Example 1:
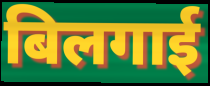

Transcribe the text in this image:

बिलगाई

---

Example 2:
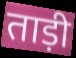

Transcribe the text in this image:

ताड़ी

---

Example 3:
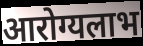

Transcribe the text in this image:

आरोग्यलाभ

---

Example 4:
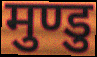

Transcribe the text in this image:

मुण्डु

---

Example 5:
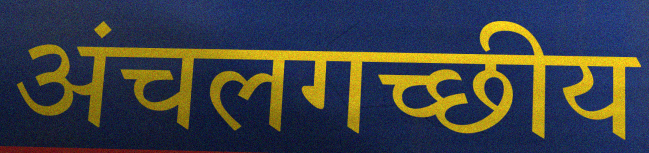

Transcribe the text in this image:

अंचलगच्छीय